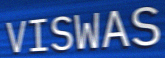
VISWAS